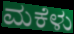
ಮಕೆಳು